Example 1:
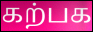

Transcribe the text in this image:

கற்பக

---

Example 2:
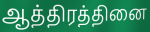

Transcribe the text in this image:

ஆத்திரத்தினை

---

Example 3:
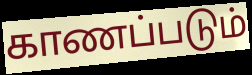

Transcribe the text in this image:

காணப்படும்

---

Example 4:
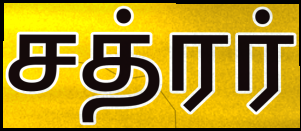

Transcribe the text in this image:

சத்ரர்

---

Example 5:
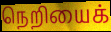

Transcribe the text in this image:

நெறியைக்